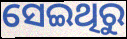
ସେଇଥିରୁ